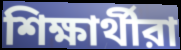
শিক্ষার্থীরা